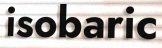
isobaric